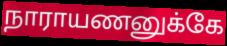
நாராயணனுக்கே